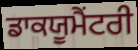
ਡਾਕਯੂਮੈਂਟਰੀ